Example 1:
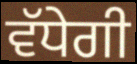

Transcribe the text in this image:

ਵੱਧੇਗੀ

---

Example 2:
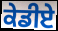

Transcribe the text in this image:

ਕੇਡੀਏ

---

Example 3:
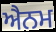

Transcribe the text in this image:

ਐਨਮ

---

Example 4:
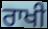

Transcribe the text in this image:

ਰਾਖੀ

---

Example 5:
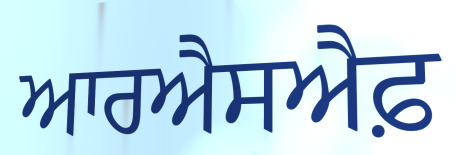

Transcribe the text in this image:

ਆਰਐਸਐਫ਼